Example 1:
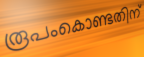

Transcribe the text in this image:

രൂപംകൊണ്ടതിന്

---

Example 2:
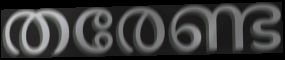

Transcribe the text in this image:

തരേണ്ട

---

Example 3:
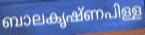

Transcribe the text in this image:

ബാലകൃഷ്ണപിള്ള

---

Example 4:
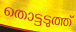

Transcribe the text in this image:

തൊട്ടടുത്ത്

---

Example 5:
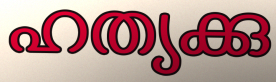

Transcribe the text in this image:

ഹത്യക്കു